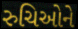
રુચિઓને